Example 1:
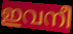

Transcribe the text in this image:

ഇവനീ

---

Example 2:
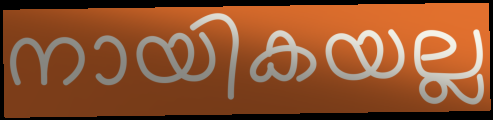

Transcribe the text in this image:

നായികയല്ല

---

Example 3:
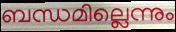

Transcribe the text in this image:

ബന്ധമില്ലെന്നും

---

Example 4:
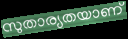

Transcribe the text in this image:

സുതാര്യതയാണ്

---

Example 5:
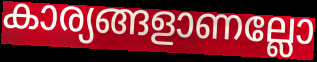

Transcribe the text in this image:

കാര്യങ്ങളാണല്ലോ